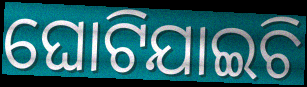
ଘୋଟିଯାଇଚି